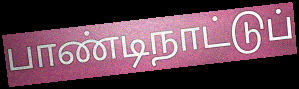
பாண்டிநாட்டுப்